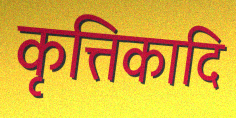
कृत्तिकादि